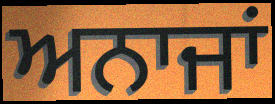
ਅਨਾਜਾਂ